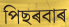
পিছৰবাৰ